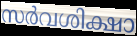
സർവശിക്ഷാ